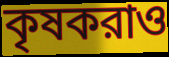
কৃষকরাও